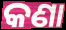
କଣା